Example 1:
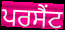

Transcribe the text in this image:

ਪਰਸੈਂਟ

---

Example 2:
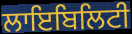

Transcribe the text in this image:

ਲਾਇਬਿਲਿਟੀ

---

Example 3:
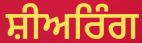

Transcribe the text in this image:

ਸ਼ੀਅਰਿੰਗ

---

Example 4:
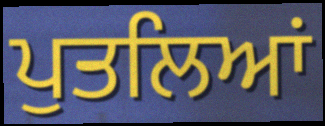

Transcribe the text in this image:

ਪੁਤਲਿਆਂ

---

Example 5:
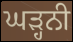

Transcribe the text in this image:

ਘੜ੍ਹਨੀ